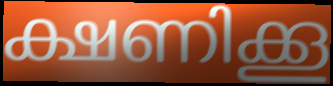
ക്ഷണിക്കൂ